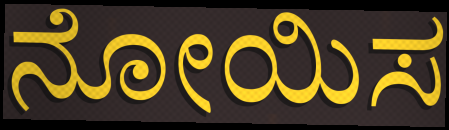
ನೋಯಿಸ